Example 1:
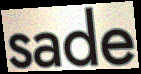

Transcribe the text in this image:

sade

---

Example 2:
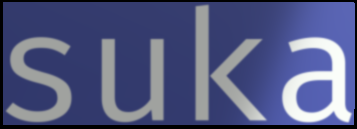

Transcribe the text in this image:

suka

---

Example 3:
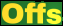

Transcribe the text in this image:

Offs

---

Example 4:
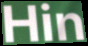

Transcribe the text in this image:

Hin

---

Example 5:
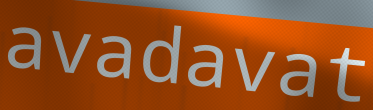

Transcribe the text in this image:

avadavat